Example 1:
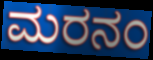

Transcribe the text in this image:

ಮರನಂ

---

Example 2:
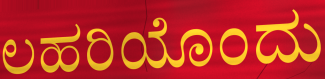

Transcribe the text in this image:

ಲಹರಿಯೊಂದು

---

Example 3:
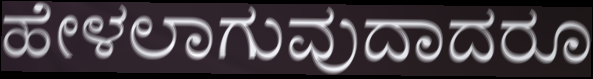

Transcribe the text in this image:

ಹೇಳಲಾಗುವುದಾದರೂ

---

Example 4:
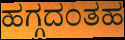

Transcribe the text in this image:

ಹಗ್ಗದಂತಹ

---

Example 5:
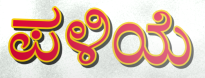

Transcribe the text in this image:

ಪಳಿಯೆ